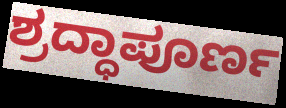
ಶ್ರದ್ಧಾಪೂರ್ಣ